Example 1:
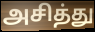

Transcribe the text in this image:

அசித்து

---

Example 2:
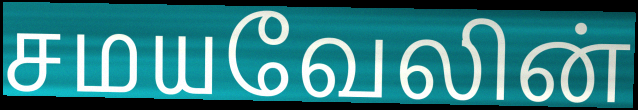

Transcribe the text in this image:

சமயவேலின்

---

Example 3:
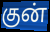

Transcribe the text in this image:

குன்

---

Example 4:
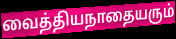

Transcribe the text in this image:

வைத்தியநாதையரும்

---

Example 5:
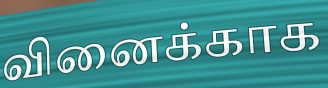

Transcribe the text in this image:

வினைக்காக